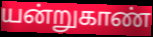
யன்றுகாண்